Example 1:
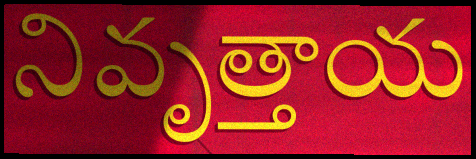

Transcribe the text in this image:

నివృత్తాయ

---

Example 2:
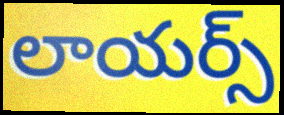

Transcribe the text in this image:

లాయర్స్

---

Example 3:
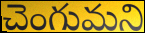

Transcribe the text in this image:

చెంగుమని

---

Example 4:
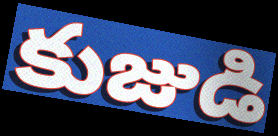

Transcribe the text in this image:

కుజుడి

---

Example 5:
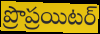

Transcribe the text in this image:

ప్రొప్రయిటర్